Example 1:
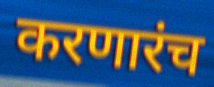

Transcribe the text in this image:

करणारंच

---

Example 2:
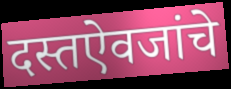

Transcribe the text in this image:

दस्तऐवजांचे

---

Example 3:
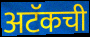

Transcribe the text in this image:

अटॅकची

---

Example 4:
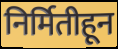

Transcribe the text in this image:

निर्मितीहून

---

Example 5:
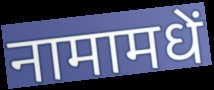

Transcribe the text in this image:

नामामधें